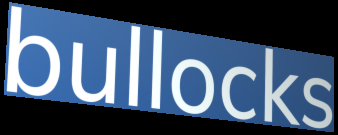
bullocks